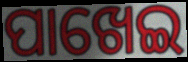
ପାଖେଇ